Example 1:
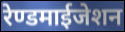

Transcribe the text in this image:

रेण्डमाईजेशन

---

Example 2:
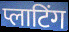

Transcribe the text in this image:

प्लाटिंग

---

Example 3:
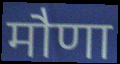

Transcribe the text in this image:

मौणा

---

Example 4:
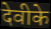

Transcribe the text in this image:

देवीके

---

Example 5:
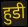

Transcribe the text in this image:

हुडी